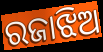
ରଜାଝିଅ